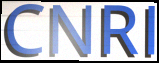
CNRI